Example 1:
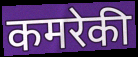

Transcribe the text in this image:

कमरेकी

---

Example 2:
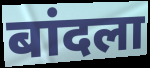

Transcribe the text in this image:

बांदला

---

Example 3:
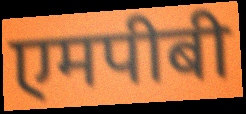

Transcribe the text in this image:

एमपीबी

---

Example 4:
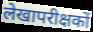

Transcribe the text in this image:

लेखापरीक्षकों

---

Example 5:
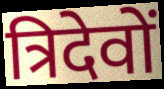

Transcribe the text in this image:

त्रिदेवों